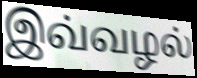
இவ்வழல்